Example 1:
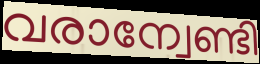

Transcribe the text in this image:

വരാന്വേണ്ടി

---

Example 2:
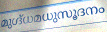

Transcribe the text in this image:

മുഗ്ദ്ധമധുസൂദനം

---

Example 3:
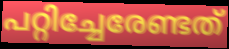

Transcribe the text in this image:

പറ്റിച്ചേരേണ്ടത്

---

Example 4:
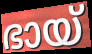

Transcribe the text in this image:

ഭായ്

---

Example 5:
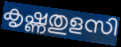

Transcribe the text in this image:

കൃഷ്ണതുളസി